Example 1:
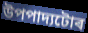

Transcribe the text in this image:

উপপাদ্যটোৰ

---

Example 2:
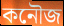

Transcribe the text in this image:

কনৌজ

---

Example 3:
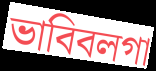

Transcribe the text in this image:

ভাবিবলগা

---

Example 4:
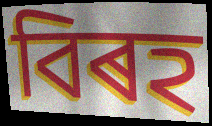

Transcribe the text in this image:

বিৰহ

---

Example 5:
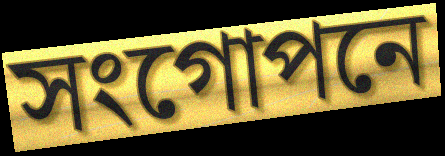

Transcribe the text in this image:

সংগোপনে